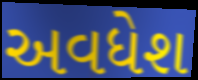
અવધેશ